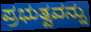
ಪ್ರಭುತ್ವವನ್ನು